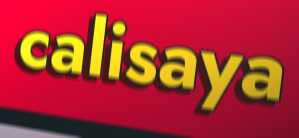
calisaya